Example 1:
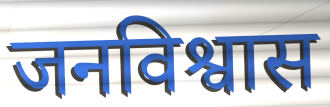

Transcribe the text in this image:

जनविश्वास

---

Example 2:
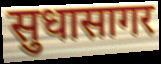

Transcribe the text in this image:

सुधासागर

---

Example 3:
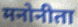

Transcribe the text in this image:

मनोनीता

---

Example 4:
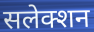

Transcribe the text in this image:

सलेक्शन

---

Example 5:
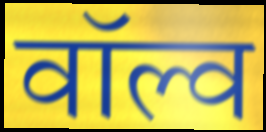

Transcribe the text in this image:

वॉल्व